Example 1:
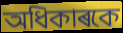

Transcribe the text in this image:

অধিকাৰকে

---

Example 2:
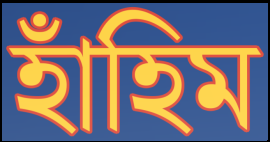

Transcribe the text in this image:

হাঁহিম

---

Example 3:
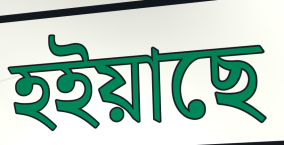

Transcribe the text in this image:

হইয়াছে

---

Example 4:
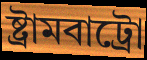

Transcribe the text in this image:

ষ্ট্ৰামবাট্ৰো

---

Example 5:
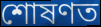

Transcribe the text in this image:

শোষণত